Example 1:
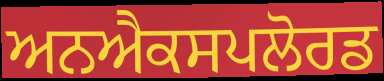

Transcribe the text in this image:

ਅਨਐਕਸਪਲੋਰਡ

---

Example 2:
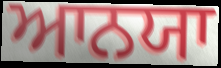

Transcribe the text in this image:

ਆਨਯਾ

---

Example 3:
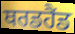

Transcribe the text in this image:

ਥਰਡਹੈਂਡ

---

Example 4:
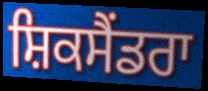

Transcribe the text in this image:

ਸ਼ਿਕਸੈਂਡਰਾ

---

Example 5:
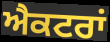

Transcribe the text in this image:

ਐਕਟਰਾਂ